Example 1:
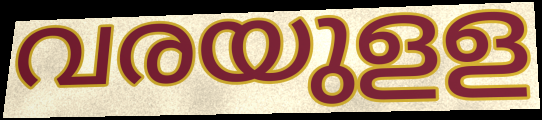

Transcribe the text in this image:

വരയുളള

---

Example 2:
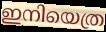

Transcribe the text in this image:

ഇനിയെത്ര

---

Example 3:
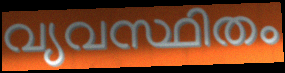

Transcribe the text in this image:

വ്യവസ്ഥിതം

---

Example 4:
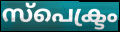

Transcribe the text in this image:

സ്പെക്ട്രം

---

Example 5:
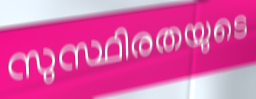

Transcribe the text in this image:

സുസ്ഥിരതയുടെ